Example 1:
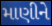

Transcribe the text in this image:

માણીને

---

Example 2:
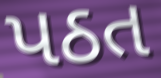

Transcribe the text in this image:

પઠત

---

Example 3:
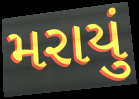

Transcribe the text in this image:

મરાયું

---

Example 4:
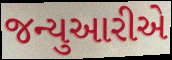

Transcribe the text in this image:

જન્યુઆરીએ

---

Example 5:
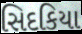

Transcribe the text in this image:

સિદકિયા